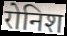
रोनिश